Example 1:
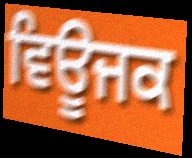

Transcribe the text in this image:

ਵਿਊਜਕ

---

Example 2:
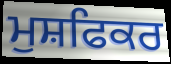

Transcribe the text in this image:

ਮੁਸ਼ਫਿਕਰ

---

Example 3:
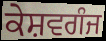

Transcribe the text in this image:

ਕੇਸ਼ਵਗੰਜ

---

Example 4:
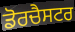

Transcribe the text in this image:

ਡੋਰਚੈਸਟਰ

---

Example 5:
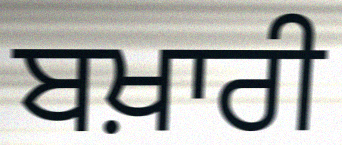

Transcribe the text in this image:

ਬਖ਼ਾਰੀ